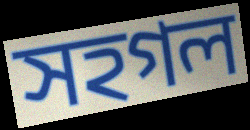
সহগল